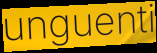
unguenti